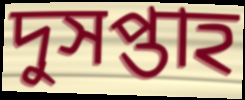
দুসপ্তাহ